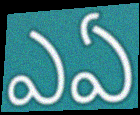
ఎఏ